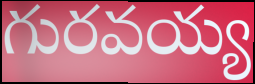
గురవయ్య